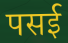
पसई